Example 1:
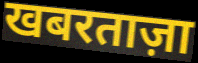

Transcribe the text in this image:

खबरताज़ा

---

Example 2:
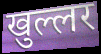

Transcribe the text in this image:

खुल्लर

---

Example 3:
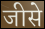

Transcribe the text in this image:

जीसे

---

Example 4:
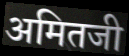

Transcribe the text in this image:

अमितजी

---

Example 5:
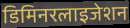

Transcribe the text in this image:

डिमिनरलाइजेशन